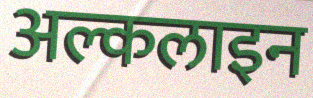
अल्कलाइन